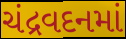
ચંદ્રવદનમાં